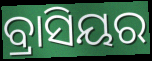
ବ୍ରାସିୟର